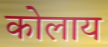
कोलाय